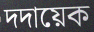
দদায়েক